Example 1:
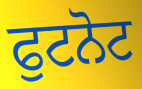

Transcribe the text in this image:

ਫੁਟਨੋਟ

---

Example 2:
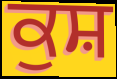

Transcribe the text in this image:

ਕੁਸ਼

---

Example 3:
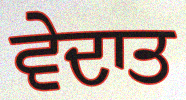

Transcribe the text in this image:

ਵੇਦਾਤ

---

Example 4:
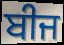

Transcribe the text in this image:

ਬੀਜ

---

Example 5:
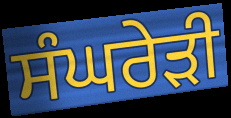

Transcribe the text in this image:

ਸੰਘਰੇੜੀ